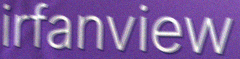
irfanview